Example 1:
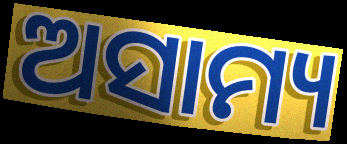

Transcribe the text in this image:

ଅସାମ୍ୟ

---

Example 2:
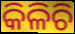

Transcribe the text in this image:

କିଳିଚି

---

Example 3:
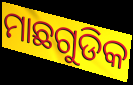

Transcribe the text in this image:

ମାଛଗୁଡିକ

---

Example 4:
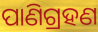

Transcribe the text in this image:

ପାଣିଗ୍ରହଣ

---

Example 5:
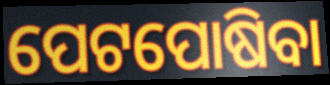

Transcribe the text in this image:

ପେଟପୋଷିବା